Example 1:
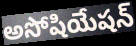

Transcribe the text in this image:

అసోషియేషన్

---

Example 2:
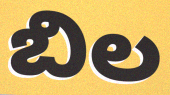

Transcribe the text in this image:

బిల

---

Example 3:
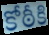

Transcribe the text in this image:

కోఠీకి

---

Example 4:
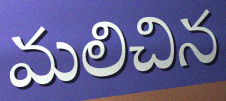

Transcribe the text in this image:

మలిచిన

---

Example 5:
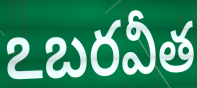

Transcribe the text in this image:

ఽబరవీత